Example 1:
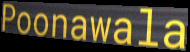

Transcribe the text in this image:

Poonawala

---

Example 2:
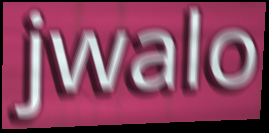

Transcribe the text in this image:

jwalo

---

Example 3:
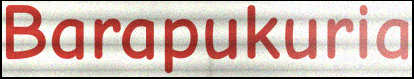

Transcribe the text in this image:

Barapukuria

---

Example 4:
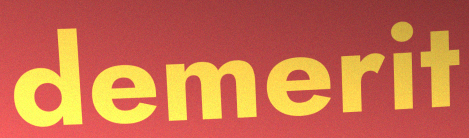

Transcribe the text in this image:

demerit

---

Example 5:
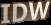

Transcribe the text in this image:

IDW